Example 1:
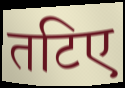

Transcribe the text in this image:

तटिए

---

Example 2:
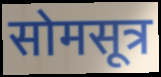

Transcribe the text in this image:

सोमसूत्र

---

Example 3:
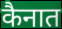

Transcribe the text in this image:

कैनात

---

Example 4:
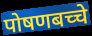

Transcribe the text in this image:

पोषणबच्चे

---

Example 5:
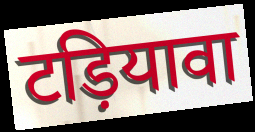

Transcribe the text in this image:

टड़ियावा